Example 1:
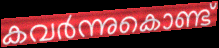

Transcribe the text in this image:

കവർന്നുകൊണ്ട്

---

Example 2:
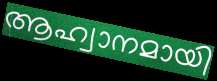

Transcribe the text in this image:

ആഹ്വാനമായി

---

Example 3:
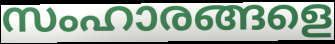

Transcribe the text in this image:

സംഹാരങ്ങളെ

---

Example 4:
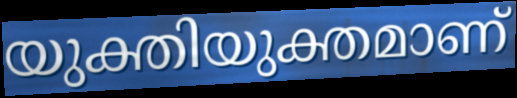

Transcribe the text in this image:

യുക്തിയുക്തമാണ്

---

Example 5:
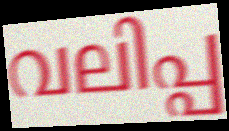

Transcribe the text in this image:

വലിപ്പ